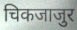
चिकजाजुर